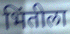
भिंतीला